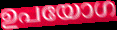
ഉപയോഗ